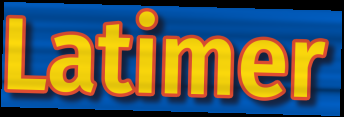
Latimer